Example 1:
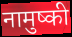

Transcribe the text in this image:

नामुष्की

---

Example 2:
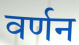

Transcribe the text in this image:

वर्णन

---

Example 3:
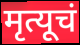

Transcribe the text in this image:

मृत्यूचं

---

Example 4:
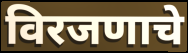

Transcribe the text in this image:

विरजणाचे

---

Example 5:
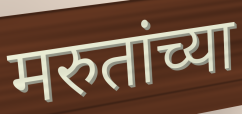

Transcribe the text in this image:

मरुतांच्या